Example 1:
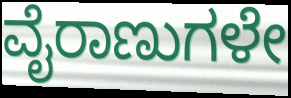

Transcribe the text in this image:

ವೈರಾಣುಗಳೇ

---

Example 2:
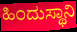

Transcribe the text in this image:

ಹಿಂದುಸ್ಥಾನಿ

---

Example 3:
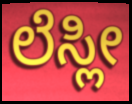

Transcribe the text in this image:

ಲೆಸ್ಲೀ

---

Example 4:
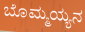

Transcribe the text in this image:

ಬೊಮ್ಮಯ್ಯನ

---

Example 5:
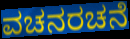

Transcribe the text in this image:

ವಚನರಚನೆ